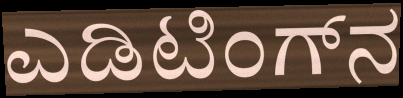
ಎಡಿಟಿಂಗ್‌ನ